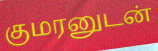
குமரனுடன்